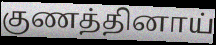
குணத்தினாய்